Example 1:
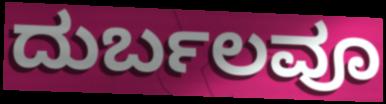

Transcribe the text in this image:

ದುರ್ಬಲವೂ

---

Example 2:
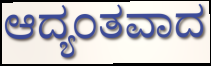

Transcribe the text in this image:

ಆದ್ಯಂತವಾದ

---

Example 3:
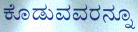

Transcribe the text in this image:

ಕೊಡುವವರನ್ನೂ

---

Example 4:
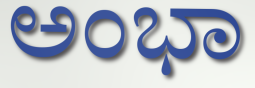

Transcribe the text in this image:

ಅಂಭಾ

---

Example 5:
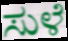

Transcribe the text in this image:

ಸುಳೆ